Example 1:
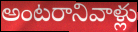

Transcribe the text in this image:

అంటరానివాళ్లు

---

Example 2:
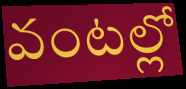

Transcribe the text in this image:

వంటల్లో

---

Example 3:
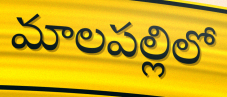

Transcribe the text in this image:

మాలపల్లిలో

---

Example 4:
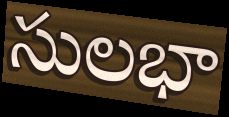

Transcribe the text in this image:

సులభా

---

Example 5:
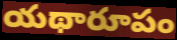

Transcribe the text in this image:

యథారూపం